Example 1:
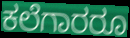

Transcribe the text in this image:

ಕಲೆಗಾರರೂ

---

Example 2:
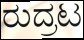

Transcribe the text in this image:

ರುದ್ರಟ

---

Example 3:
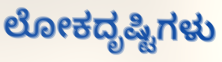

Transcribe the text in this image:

ಲೋಕದೃಷ್ಟಿಗಳು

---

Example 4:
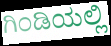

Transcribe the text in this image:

ಗಿಂಡಿಯಲ್ಲಿ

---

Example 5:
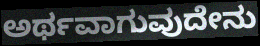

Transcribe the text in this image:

ಅರ್ಥವಾಗುವುದೇನು